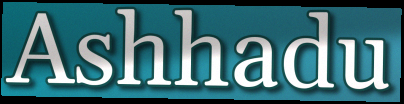
Ashhadu